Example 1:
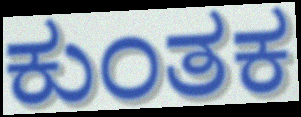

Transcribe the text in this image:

ಕುಂತಕ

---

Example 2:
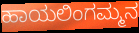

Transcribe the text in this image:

ಹಾಯಲಿಂಗಮ್ಮನ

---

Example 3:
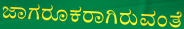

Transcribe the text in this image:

ಜಾಗರೂಕರಾಗಿರುವಂತೆ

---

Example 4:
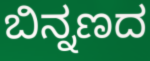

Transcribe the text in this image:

ಬಿನ್ನಣದ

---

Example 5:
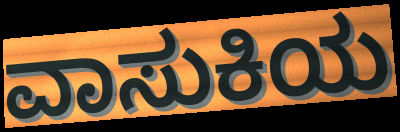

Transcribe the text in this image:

ವಾಸುಕಿಯ